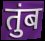
तुंब